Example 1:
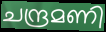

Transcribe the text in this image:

ചന്ദ്രമണി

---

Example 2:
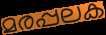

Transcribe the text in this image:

മരപ്പലക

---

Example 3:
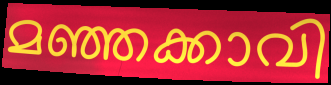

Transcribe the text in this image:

മഞ്ഞക്കാവി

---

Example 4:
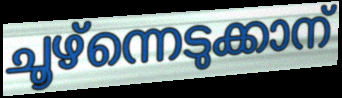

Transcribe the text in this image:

ചൂഴ്ന്നെടുക്കാന്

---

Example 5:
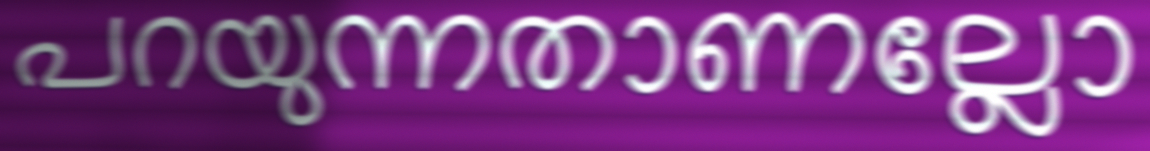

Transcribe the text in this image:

പറയുന്നതാണല്ലോ